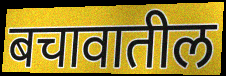
बचावातील